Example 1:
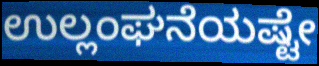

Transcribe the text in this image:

ಉಲ್ಲಂಘನೆಯಷ್ಟೇ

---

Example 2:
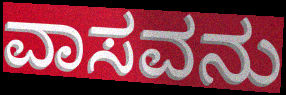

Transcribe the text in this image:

ವಾಸವನು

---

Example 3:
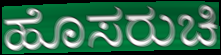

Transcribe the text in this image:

ಹೊಸರುಚಿ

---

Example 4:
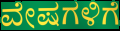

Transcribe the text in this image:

ವೇಷಗಳಿಗೆ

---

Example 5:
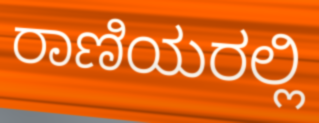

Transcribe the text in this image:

ರಾಣಿಯರಲ್ಲಿ